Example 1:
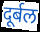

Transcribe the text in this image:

दूर्बल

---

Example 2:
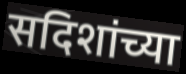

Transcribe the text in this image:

सदिशांच्या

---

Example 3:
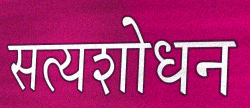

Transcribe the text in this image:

सत्यशोधन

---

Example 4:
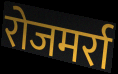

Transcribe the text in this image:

रोजमर्रा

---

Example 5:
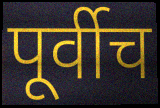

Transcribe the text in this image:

पूर्वीच